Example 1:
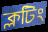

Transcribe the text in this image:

ক্লটিং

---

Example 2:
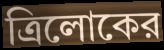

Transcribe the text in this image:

ত্রিলোকের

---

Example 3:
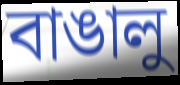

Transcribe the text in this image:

বাঙালু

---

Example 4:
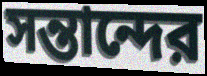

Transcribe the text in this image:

সন্তান্দের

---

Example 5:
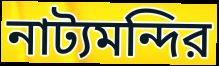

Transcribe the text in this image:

নাট্যমন্দির